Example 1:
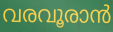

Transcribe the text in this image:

വരവൂരാൻ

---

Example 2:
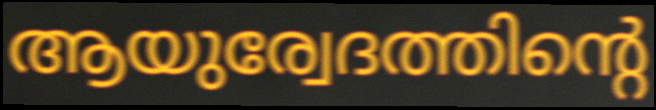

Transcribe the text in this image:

ആയുര്വേദത്തിന്റെ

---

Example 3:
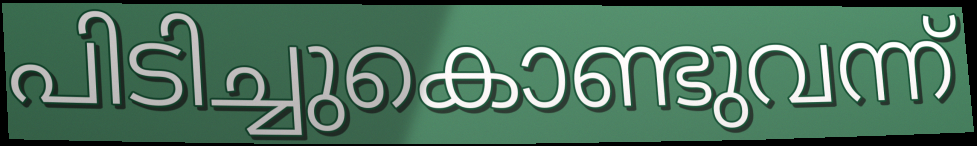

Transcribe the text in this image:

പിടിച്ചുകൊണ്ടുവന്ന്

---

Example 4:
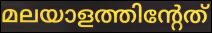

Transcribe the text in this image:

മലയാളത്തിന്റേത്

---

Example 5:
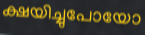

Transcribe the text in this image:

ക്ഷയിച്ചുപോയോ